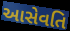
આસેવતિ